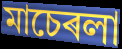
মাচেৰলা